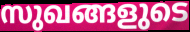
സുഖങ്ങളുടെ